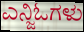
ಎನ್ಜಿಓಗಳು